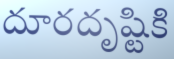
దూరదృష్టికి